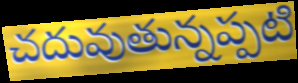
చదువుతున్నప్పటి